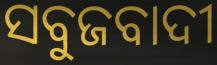
ସବୁଜବାଦୀ